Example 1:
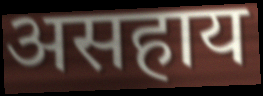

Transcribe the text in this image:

असहाय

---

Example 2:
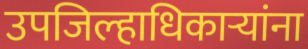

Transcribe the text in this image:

उपजिल्हाधिकाऱ्यांना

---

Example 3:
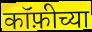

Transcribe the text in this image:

कॉफ़ीच्या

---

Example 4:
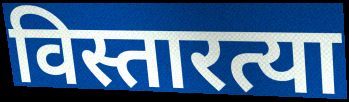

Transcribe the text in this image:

विस्तारत्या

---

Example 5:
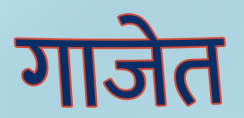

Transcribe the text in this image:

गाजेत